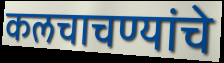
कलचाचण्यांचे